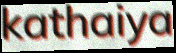
kathaiya